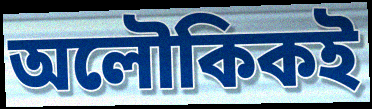
অলৌকিকই